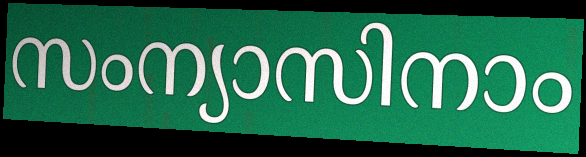
സംന്യാസിനാം